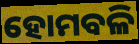
ହୋମବଳି